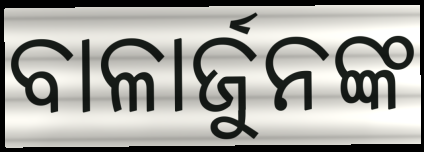
ବାଳାର୍ଜୁନଙ୍କ